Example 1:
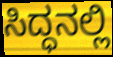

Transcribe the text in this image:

ಸಿದ್ಧನಲ್ಲಿ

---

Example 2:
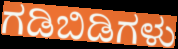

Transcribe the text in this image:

ಗಡಿಬಿಡಿಗಳು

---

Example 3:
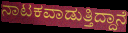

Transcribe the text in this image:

ನಾಟಕವಾಡುತ್ತಿದ್ದಾನೆ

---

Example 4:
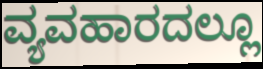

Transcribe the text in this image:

ವ್ಯವಹಾರದಲ್ಲೂ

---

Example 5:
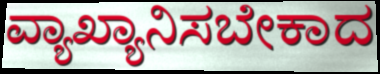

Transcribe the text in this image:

ವ್ಯಾಖ್ಯಾನಿಸಬೇಕಾದ